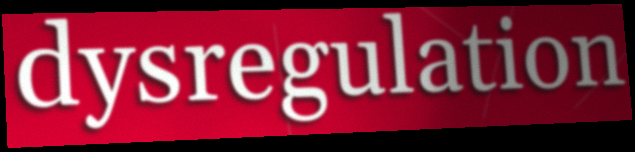
dysregulation